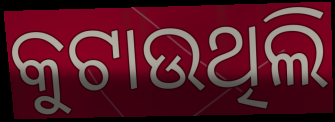
କୁଟାଉଥିଲି